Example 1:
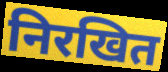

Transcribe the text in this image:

निरखित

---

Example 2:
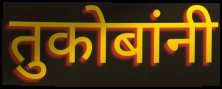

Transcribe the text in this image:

तुकोबांनी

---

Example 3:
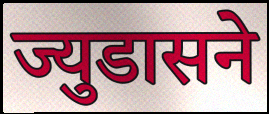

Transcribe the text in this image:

ज्युडासने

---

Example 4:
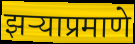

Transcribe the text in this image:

झऱ्याप्रमाणे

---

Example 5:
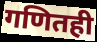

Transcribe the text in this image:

गणितही